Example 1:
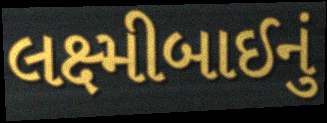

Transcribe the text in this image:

લક્ષ્મીબાઈનું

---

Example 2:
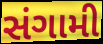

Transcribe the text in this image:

સંગામી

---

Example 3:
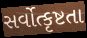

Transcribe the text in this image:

સર્વોત્કૃષ્ટતા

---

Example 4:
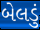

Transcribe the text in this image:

બેલડું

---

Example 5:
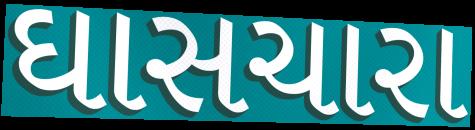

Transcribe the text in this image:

ઘાસચારા